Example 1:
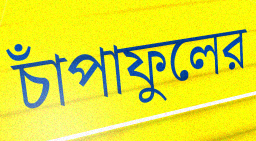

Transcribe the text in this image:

চাঁপাফুলের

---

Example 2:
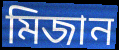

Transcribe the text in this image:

মিজান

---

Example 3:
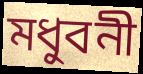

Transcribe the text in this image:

মধুবনী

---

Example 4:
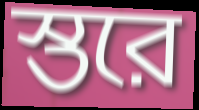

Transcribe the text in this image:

স্তরে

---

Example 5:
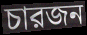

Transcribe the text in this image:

চারজন